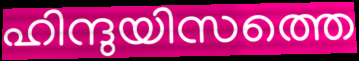
ഹിന്ദുയിസത്തെ